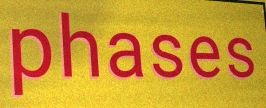
phases